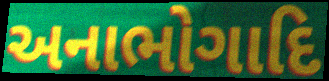
અનાભોગાદિ